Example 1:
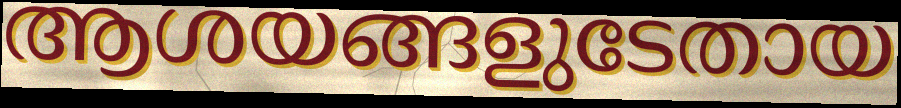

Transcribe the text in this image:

ആശയങ്ങളുടേതായ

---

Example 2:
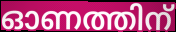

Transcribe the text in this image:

ഓണത്തിന്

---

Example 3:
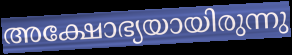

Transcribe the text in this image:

അക്ഷോഭ്യയായിരുന്നു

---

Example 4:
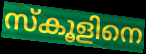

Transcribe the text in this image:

സ്കൂളിനെ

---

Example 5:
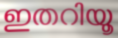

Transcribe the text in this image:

ഇതറിയൂ